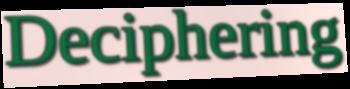
Deciphering